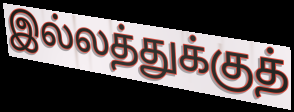
இல்லத்துக்குத்